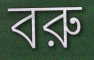
বরু